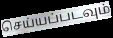
செய்யப்படவும்